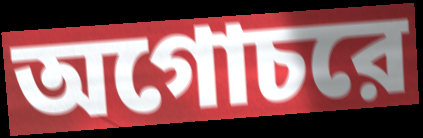
অগোচরে